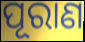
ପୂରାଣ